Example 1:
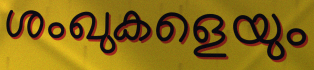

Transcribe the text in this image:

ശംഖുകളെയും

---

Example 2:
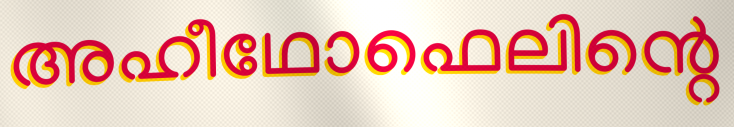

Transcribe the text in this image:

അഹീഥോഫെലിന്റെ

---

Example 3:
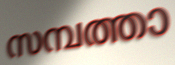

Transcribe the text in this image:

സമ്പത്താ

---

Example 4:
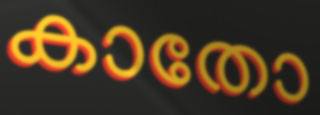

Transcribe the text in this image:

കാതോ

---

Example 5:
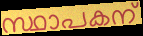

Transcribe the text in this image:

സ്ഥാപകന്